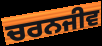
ਚਰਨਜੀਵ